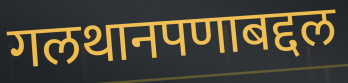
गलथानपणाबद्दल